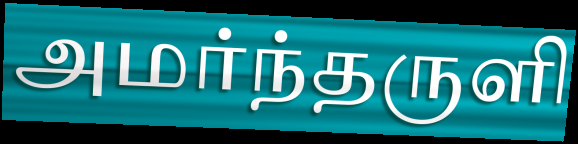
அமர்ந்தருளி